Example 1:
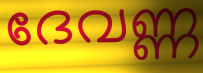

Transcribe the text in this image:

ദേവണ്ണ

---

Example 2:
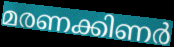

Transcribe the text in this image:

മരണക്കിണർ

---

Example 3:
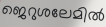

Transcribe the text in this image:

ജെറുശലേമിൽ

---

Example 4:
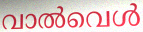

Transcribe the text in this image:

വാൽവെൾ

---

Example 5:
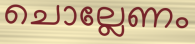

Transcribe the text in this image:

ചൊല്ലേണം